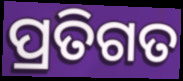
ପ୍ରତିଗତ